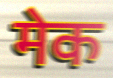
मेक